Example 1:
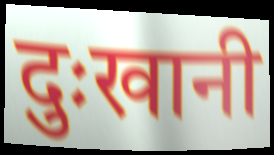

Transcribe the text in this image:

दुःखानी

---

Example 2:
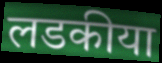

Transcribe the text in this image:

लडकीया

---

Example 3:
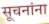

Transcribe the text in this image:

सूचनांना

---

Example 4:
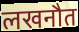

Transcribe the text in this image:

लखनौत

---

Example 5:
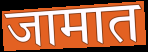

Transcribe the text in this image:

जामात